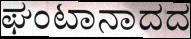
ಘಂಟಾನಾದದ